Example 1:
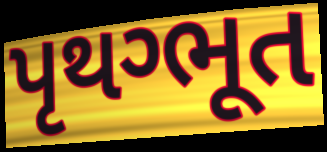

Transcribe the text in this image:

પૃથગ્ભૂત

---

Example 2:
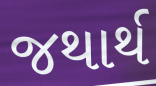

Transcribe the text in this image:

જથાર્થ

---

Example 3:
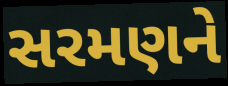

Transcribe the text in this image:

સરમણને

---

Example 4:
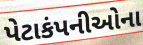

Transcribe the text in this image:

પેટાકંપનીઓના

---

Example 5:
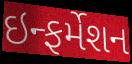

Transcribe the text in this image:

ઇન્ફર્મેશન